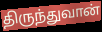
திருந்துவான்